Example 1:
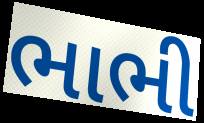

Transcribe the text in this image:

ભાભી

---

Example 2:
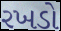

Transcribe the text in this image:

રખડો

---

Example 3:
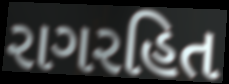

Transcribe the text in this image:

રાગરહિત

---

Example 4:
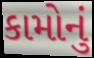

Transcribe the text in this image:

કામોનું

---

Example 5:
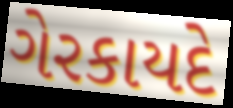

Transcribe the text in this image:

ગેરકાયદે